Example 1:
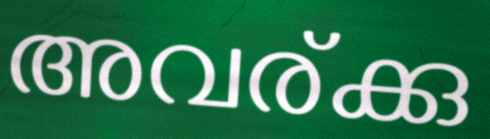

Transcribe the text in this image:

അവര്ക്കു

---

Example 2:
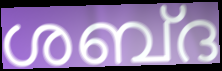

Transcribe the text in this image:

ശബ്‌ദ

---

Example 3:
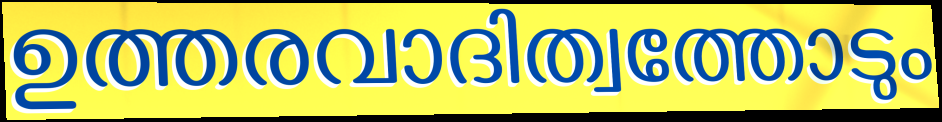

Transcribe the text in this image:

ഉത്തരവാദിത്വത്തോടും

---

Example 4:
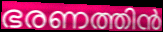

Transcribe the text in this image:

ഭരണത്തിൻ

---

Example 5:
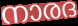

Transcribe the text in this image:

നാരദ